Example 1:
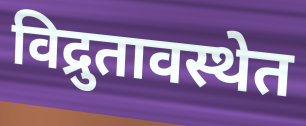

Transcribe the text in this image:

विद्रुतावस्थेत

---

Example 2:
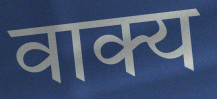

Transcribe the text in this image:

वाक्य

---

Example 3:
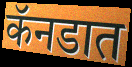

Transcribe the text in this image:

कॅनडात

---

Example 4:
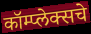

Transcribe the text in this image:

कॉम्प्लेक्सचे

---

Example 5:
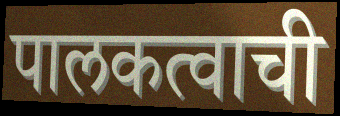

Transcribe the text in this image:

पालकत्वाची